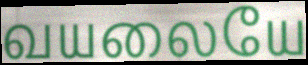
வயலையே